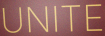
UNITE